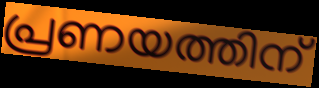
പ്രണയത്തിന്